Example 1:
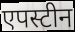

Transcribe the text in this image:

एपस्टीन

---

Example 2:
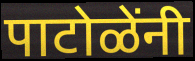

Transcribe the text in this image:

पाटोळेंनी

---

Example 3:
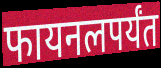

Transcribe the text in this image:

फायनलपर्यंत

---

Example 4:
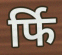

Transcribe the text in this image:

र्फि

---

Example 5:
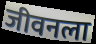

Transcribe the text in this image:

जीवनला